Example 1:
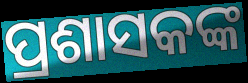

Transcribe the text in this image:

ପ୍ରଶାସକଙ୍କ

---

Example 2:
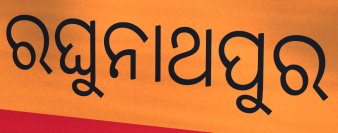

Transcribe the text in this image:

ରଘୁନାଥପୁର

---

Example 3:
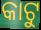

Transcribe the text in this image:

କାଟୁ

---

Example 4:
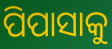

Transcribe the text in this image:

ପିପାସାକୁ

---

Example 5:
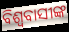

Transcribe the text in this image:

ବିଶ୍ଵବାସୀଙ୍କ